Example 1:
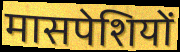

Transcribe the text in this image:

मासपेशियों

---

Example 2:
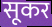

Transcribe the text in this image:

सूकर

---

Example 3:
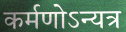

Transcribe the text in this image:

कर्मणोऽन्यत्र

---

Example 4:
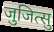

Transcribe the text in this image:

जुजित्सु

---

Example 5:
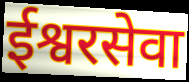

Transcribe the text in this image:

ईश्वरसेवा